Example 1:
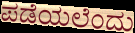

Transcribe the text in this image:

ಪಡೆಯಲೆಂದು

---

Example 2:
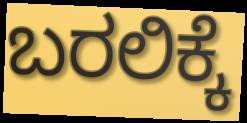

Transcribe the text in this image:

ಬರಲಿಕ್ಕೆ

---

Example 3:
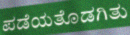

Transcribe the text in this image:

ಪಡೆಯತೊಡಗಿತು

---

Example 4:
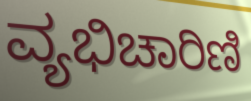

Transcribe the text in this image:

ವ್ಯಭಿಚಾರಿಣಿ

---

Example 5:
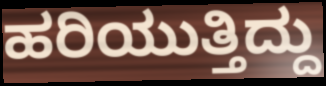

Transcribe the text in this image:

ಹರಿಯುತ್ತಿದ್ದು